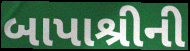
બાપાશ્રીની